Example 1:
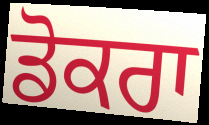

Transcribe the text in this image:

ਡੋਕਰਾ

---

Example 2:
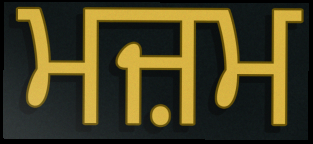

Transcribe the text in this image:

ਮਜ਼ਮ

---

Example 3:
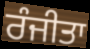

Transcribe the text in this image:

ਰੰਜੀਤਾ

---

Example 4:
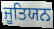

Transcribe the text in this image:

ਜੂਤਿਯਨ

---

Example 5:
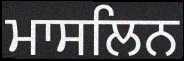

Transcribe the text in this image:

ਮਾਸਲਿਨ